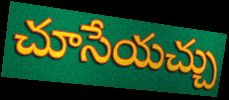
చూసేయచ్చు